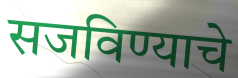
सजविण्याचे